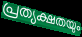
പ്രത്യക്ഷതയും